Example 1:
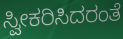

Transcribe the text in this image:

ಸ್ವೀಕರಿಸಿದರಂತೆ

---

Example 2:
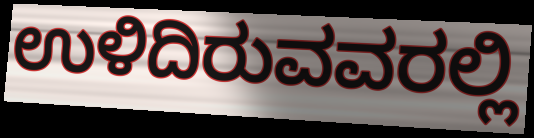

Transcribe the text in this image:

ಉಳಿದಿರುವವರಲ್ಲಿ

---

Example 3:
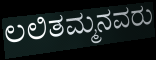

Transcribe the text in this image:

ಲಲಿತಮ್ಮನವರು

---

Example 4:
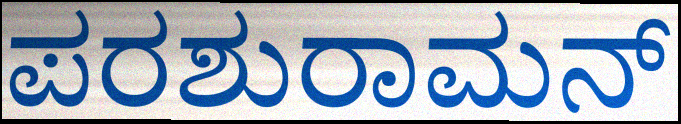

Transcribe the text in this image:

ಪರಶುರಾಮನ್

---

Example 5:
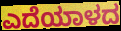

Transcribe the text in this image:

ಎದೆಯಾಳದ